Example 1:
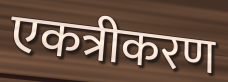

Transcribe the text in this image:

एकत्रीकरण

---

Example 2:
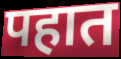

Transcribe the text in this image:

पहात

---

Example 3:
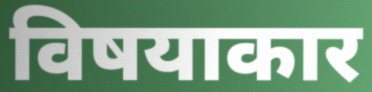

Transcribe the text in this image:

विषयाकार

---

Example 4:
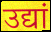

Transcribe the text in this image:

उद्यां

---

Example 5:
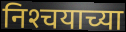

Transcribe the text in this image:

निश्चयाच्या